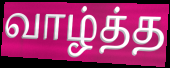
வாழ்த்த